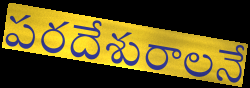
పరదేశురాలనే